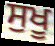
ਸੁਖੂ